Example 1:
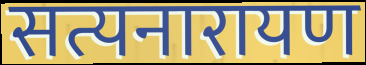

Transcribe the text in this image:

सत्यनारायण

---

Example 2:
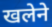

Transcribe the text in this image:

खलेने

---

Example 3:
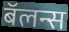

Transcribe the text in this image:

बॅलन्स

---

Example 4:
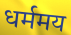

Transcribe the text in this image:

धर्ममय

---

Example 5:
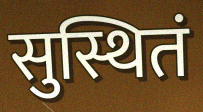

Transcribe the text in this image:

सुस्थितं